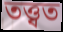
তত্ত্বত